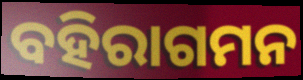
ବହିରାଗମନ